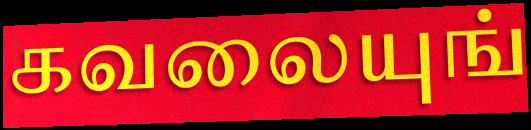
கவலையுங்